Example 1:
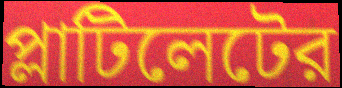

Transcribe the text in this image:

প্লাটিলেটের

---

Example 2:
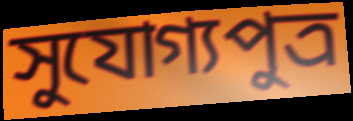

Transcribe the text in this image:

সুযোগ্যপুত্র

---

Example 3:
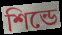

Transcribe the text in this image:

শিন্ডে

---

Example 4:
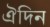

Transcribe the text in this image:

ঐদিন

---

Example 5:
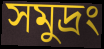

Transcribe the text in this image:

সমুদ্রং